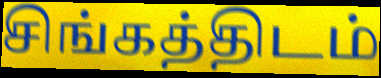
சிங்கத்திடம்